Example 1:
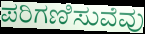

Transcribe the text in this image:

ಪರಿಗಣಿಸುವೆವು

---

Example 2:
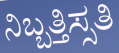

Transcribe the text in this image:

ನಿಬ್ಬತ್ತಿಸ್ಸತಿ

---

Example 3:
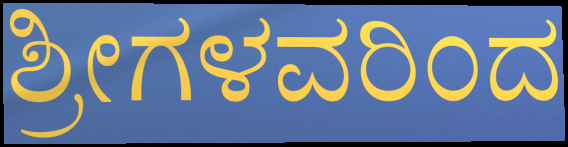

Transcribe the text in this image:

ಶ್ರೀಗಳವರಿಂದ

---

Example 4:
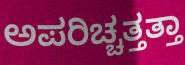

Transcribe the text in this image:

ಅಪರಿಚ್ಚತ್ತತ್ತಾ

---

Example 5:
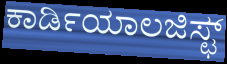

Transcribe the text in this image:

ಕಾರ್ಡಿಯಾಲಜಿಸ್ಟ್